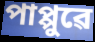
পাপ্পুৱে